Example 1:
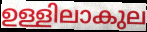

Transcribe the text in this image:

ഉള്ളിലാകുല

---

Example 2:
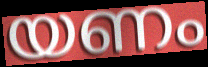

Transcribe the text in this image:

യണം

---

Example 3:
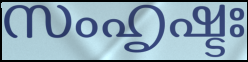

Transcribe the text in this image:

സംഹൃഷ്ടഃ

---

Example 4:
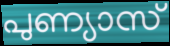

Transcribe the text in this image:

പുണ്യാസ്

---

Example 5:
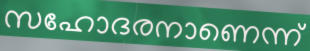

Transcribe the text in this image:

സഹോദരനാണെന്ന്